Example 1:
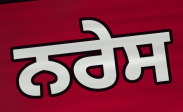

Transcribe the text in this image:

ਨਰੇਸ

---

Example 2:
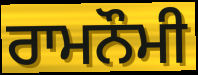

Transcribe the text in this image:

ਰਾਮਨੌਮੀ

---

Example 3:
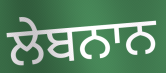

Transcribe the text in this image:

ਲੇਬਨਾਨ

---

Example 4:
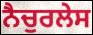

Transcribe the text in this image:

ਨੈਚੁਰਲੇਸ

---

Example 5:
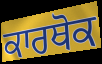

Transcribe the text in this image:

ਕਾਰਥੋਕ